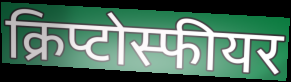
क्रिप्टोस्फीयर